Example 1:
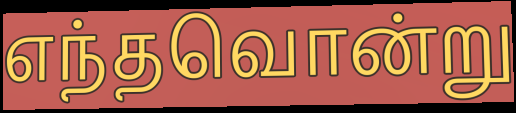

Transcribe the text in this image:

எந்தவொன்று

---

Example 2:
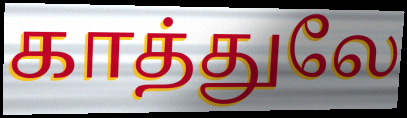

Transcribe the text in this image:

காத்துலே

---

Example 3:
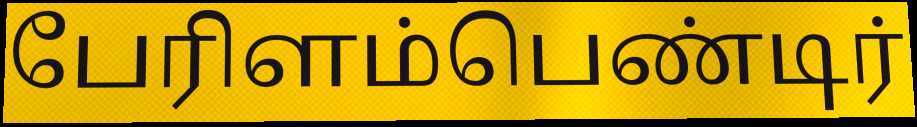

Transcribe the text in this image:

பேரிளம்பெண்டிர்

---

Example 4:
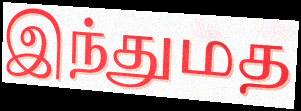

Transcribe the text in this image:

இந்துமத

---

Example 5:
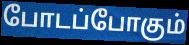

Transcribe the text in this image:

போடப்போகும்